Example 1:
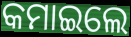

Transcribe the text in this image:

କମାଇଲେ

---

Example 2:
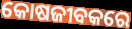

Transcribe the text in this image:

କୋଷଜୀବକରେ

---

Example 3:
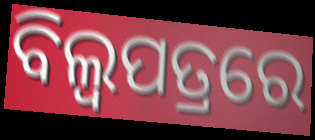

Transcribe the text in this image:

ବିଲ୍ଵପତ୍ରରେ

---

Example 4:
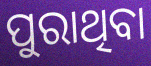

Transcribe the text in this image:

ପୁରାଥିବା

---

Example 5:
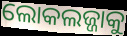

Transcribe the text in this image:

ଲୋକଲଜ୍ଜାକୁ